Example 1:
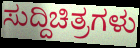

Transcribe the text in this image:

ಸುದ್ದಿಚಿತ್ರಗಳು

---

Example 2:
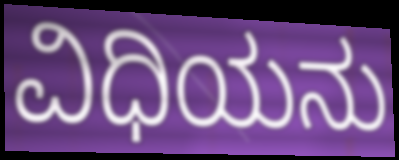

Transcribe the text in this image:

ವಿಧಿಯನು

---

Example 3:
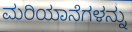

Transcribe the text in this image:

ಮರಿಯಾನೆಗಳನ್ನು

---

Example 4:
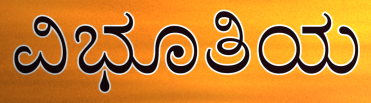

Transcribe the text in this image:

ವಿಭೂತಿಯ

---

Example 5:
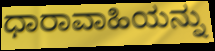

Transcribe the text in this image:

ಧಾರಾವಾಹಿಯನ್ನು